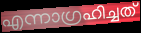
എന്നാഗ്രഹിച്ചത്